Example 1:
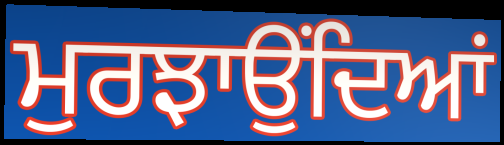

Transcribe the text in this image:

ਮੁਰਝਾਉਂਦਿਆਂ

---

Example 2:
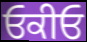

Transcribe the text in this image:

ਓਕੀਓ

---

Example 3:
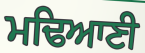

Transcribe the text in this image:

ਮਢਿਆਣੀ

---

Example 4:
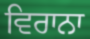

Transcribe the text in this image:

ਵਿਰਾਨਾ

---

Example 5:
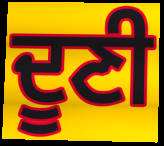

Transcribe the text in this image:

ਦੂਣੀ